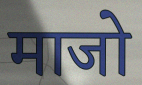
माजो